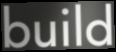
build